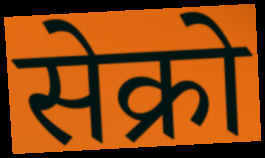
सेक्रो